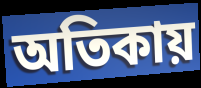
অতিকায়